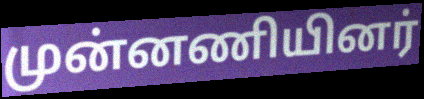
முன்னணியினர்